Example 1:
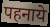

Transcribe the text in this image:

पहनाये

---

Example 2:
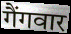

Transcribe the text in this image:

गैंगवार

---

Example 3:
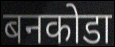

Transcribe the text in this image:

बनकोडा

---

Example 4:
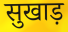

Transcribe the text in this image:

सुखाड़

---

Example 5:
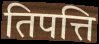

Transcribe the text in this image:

तिपत्ति